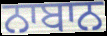
ਨਾਬਾਨ